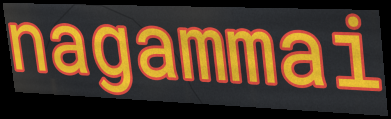
nagammai